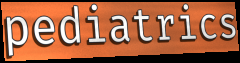
pediatrics